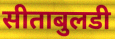
सीताबुलडी